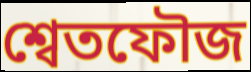
শ্বেতফৌজ